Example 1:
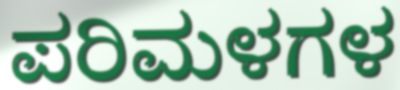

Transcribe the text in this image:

ಪರಿಮಳಗಳ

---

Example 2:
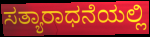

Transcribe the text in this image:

ಸತ್ಯಾರಾಧನೆಯಲ್ಲಿ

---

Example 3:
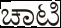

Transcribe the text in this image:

ಚಾಟಿ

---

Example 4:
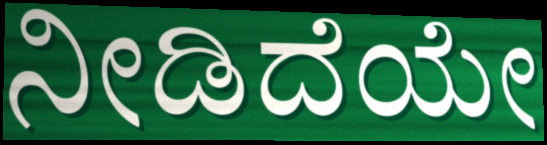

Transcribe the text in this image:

ನೀಡಿದೆಯೇ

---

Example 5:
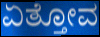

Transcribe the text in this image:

ಏತ್ತೋವ